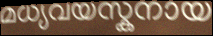
മധ്യവയസ്കനായ